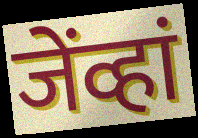
जेंव्हां